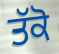
ਤੱਕੋ